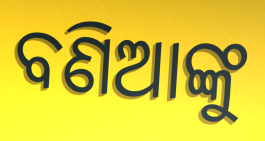
ବଣିଆଙ୍କୁ